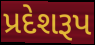
પ્રદેશરૂપ